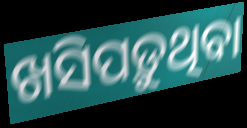
ଖସିପଡ଼ୁଥିବା